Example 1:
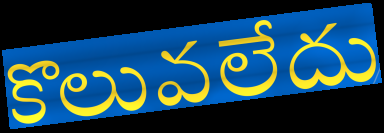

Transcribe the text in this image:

కొలువలేదు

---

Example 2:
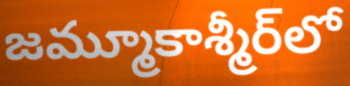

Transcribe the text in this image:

జమ్మూకాశ్మీర్‌లో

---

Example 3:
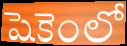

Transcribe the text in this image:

షెకెంలో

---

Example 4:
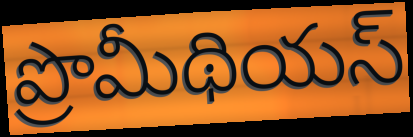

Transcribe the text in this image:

ప్రొమీథియస్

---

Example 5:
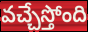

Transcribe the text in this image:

వచ్చేస్తోంది